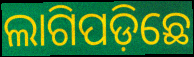
ଲାଗିପଡ଼ିଛେ